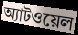
অ্যাটওয়েল